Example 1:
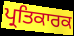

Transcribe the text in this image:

ਪ੍ਰਤਿਕਾਰਕ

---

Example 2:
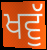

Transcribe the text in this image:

ਖਵੁੱ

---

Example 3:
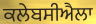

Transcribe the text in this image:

ਕਲੇਬਸੀਐਲਾ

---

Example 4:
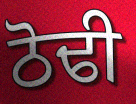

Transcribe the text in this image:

ਠੋਢੀ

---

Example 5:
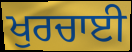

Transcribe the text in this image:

ਖੁਰਚਾਈ